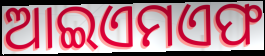
ଆଇଏମଏଫ